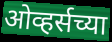
ओव्हर्सच्या